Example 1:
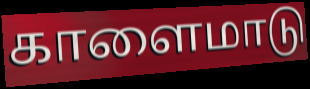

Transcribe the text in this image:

காளைமாடு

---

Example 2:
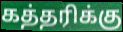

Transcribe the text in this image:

கத்தரிக்கு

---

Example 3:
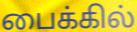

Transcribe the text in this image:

பைக்கில்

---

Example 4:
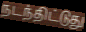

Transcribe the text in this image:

நடந்திட்டுது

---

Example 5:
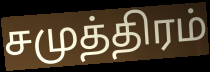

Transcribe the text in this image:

சமுத்திரம்